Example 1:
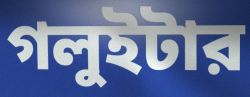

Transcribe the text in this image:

গলুইটার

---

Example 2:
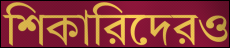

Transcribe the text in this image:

শিকারিদেরও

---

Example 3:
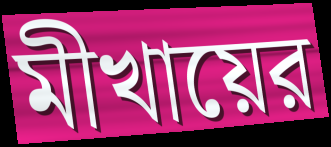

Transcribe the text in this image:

মীখায়ের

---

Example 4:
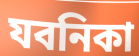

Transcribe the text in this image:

যবনিকা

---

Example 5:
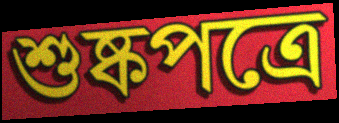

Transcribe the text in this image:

শুষ্কপত্রে